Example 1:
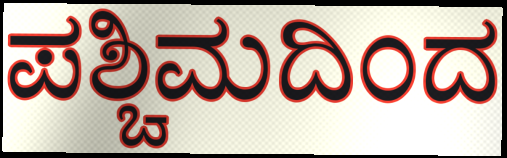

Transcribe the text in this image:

ಪಶ್ಚಿಮದಿಂದ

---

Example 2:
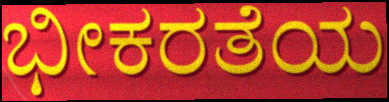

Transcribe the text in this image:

ಭೀಕರತೆಯ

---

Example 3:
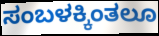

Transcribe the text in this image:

ಸಂಬಳಕ್ಕಿಂತಲೂ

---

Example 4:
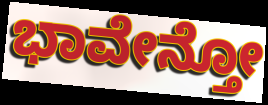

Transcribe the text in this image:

ಭಾವೇನ್ತೋ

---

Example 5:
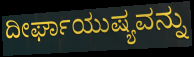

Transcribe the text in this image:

ದೀರ್ಘಾಯುಷ್ಯವನ್ನು